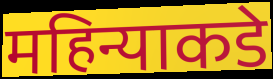
महिन्याकडे